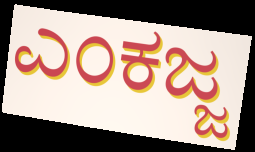
ಎಂಕಜ್ಜ